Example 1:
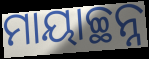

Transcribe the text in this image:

ମାୟାଚ୍ଛନ୍ନ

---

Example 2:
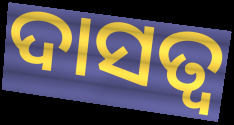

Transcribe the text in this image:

ଦାସତ୍ଵ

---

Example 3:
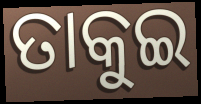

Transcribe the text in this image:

ତାକୁଇ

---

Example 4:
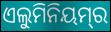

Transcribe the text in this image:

ଏଲୁମିନିୟମ୍‌ର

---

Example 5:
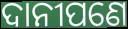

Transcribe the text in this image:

ଦାନୀପଣେ